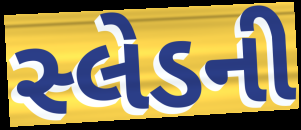
સ્લેડની